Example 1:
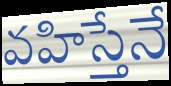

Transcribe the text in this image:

వహిస్తేనే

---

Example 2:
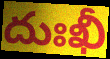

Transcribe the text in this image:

దుఃఖీ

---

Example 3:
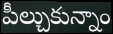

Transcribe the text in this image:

పీల్చుకున్నాం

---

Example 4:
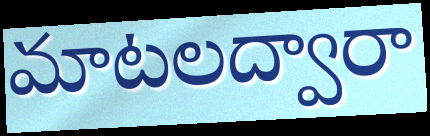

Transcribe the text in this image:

మాటలద్వారా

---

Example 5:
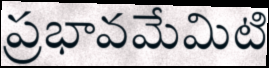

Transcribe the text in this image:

ప్రభావమేమిటి